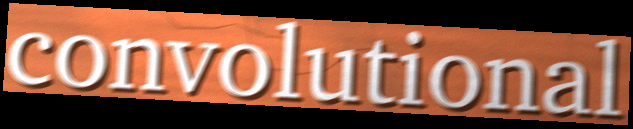
convolutional